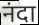
नंदा